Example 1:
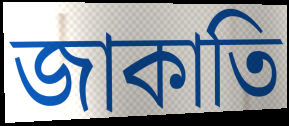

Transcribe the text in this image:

জাকাতি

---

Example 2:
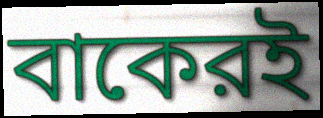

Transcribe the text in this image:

বাকেরই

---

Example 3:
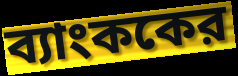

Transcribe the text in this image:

ব্যাংককের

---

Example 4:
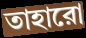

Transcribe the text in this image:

তাহারো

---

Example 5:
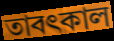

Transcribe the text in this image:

তাবৎকাল